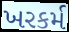
ખરકર્મ